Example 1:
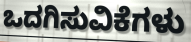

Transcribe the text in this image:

ಒದಗಿಸುವಿಕೆಗಳು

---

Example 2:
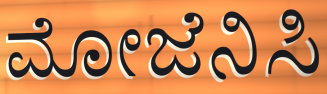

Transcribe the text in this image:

ಮೋಜೆನಿಸಿ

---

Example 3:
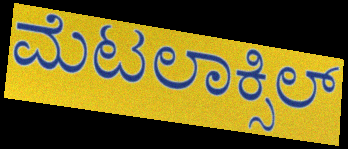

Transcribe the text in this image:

ಮೆಟಲಾಕ್ಸಿಲ್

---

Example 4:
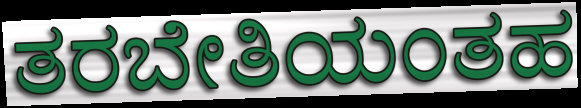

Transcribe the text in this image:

ತರಬೇತಿಯಂತಹ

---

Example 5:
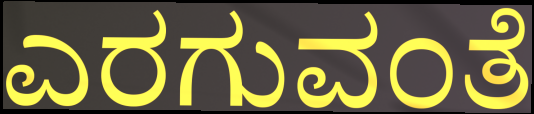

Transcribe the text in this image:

ಎರಗುವಂತೆ